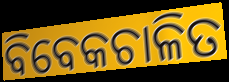
ବିବେକଚାଳିତ